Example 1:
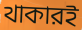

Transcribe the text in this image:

থাকারই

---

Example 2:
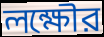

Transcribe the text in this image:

লক্ষৌর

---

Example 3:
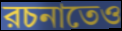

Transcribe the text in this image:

রচনাতেও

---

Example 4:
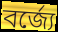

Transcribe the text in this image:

বর্জ্যে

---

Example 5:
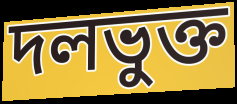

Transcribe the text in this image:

দলভুক্ত